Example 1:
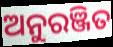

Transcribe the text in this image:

ଅନୁରଞ୍ଜିତ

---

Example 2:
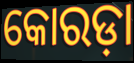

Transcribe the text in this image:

କୋରଡ଼ା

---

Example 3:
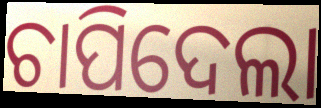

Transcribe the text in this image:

ଚାପିଦେଲା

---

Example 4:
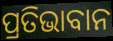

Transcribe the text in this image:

ପ୍ରତିଭାବାନ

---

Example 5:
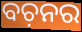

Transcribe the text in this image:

ବଚ଼ନର